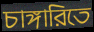
চাঙ্গারিতে